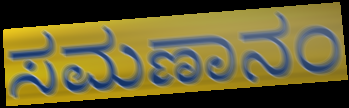
ಸಮಣಾನಂ